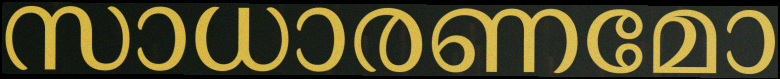
സാധാരണമോ